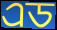
এড